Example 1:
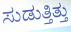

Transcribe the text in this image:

ಸುಡುತ್ತಿತ್ತು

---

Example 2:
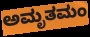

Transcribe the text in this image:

ಅಮೃತಮಂ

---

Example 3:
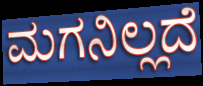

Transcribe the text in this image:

ಮಗನಿಲ್ಲದೆ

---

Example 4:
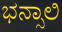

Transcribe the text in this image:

ಭನ್ಸಾಲಿ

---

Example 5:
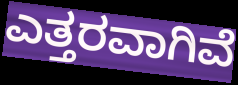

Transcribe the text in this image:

ಎತ್ತರವಾಗಿವೆ